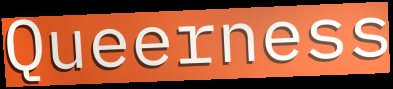
Queerness